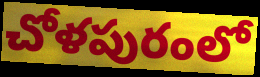
చోళపురంలో